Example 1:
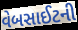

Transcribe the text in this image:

વેબસાઈટની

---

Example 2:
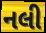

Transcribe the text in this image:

નલી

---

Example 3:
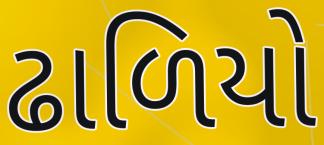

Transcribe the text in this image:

ઢાળિયો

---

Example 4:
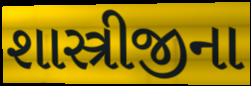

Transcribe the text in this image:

શાસ્ત્રીજીના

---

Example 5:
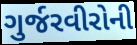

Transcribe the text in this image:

ગુર્જરવીરોની